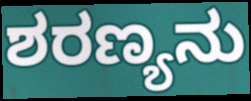
ಶರಣ್ಯನು